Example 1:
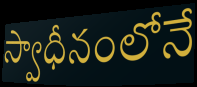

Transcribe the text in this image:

స్వాధీనంలోనే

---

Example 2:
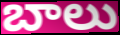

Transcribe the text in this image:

బాలు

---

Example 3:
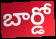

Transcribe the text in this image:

బార్డో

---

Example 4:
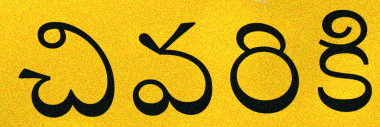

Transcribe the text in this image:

చివరికి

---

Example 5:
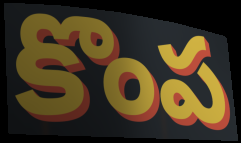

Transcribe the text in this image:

కొంప